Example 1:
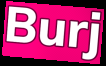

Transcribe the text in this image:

Burj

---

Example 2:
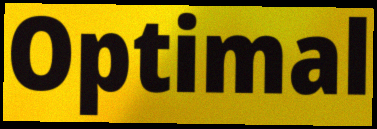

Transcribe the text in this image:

Optimal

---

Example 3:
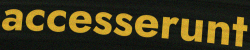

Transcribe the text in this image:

accesserunt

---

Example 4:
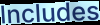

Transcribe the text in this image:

Includes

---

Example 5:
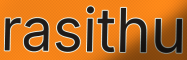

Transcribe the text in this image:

rasithu